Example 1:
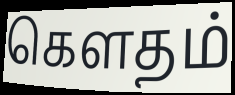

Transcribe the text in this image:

கௌதம்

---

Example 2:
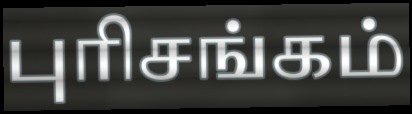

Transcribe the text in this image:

புரிசங்கம்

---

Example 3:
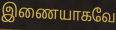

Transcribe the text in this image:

இணையாகவே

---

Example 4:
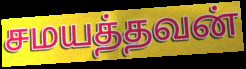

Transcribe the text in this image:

சமயத்தவன்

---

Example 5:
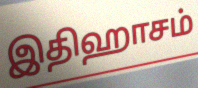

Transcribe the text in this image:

இதிஹாசம்